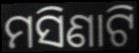
ମସିଣାଟି